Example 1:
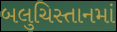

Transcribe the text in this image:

બલુચિસ્તાનમાં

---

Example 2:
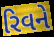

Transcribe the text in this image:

રિવને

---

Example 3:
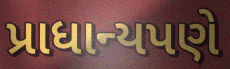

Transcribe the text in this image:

પ્રાધાન્યપણે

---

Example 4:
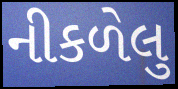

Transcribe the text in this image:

નીકળેલુ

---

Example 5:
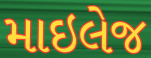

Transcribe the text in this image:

માઇલેજ